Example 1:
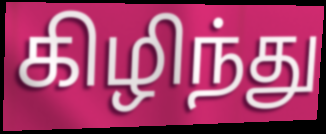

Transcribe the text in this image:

கிழிந்து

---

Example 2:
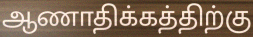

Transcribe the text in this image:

ஆணாதிக்கத்திற்கு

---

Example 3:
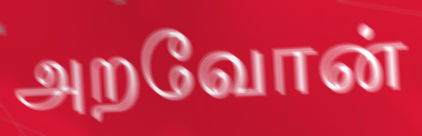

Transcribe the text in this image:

அறவோன்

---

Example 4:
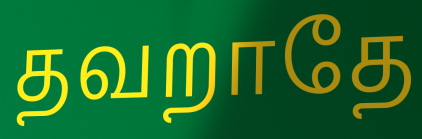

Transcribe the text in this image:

தவறாதே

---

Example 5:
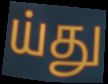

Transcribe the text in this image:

ய்து